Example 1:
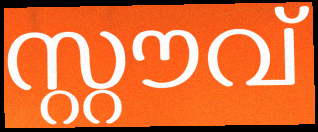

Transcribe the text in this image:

സ്റ്റൗവ്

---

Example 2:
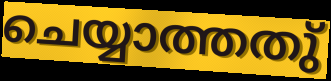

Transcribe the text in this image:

ചെയ്യാത്തതു്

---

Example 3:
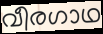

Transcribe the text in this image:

വീരഗാഥ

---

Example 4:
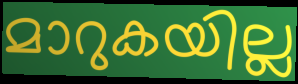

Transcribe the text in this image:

മാറുകയില്ല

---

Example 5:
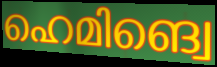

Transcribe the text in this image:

ഹെമിങ്വെ